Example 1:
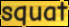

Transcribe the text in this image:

squat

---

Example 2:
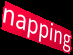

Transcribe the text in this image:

napping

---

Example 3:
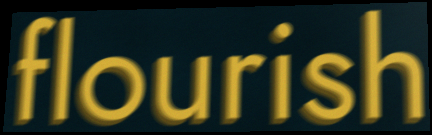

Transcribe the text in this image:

flourish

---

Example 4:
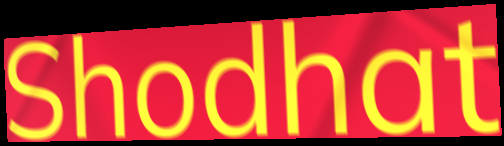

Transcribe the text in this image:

Shodhat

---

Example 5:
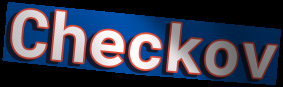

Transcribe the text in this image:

Checkov